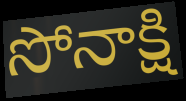
సోనాక్షి